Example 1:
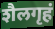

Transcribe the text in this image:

शैलगृहं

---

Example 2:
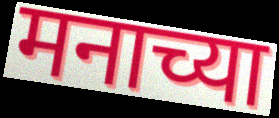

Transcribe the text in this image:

मनाच्‍या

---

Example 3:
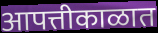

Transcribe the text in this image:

आपत्तीकाळात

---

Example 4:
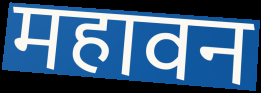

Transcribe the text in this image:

महावन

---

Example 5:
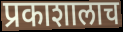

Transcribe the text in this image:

प्रकाशालाच